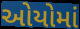
ઓયોમાં